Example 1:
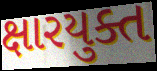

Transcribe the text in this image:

ક્ષારયુક્ત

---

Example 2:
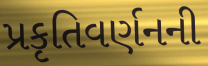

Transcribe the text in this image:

પ્રકૃતિવર્ણનની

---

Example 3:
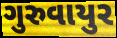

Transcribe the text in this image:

ગુરુવાયુર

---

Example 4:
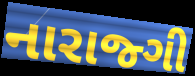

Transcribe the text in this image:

નારાજ્ગી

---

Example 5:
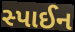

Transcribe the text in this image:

સ્પાઈન